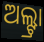
ଅଲ୍ଟ୍ରା